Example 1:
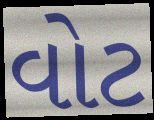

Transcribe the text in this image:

વોટ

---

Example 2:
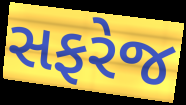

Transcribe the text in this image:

સફરેજ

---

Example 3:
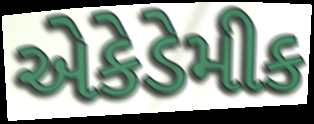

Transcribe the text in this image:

એકેડેમીક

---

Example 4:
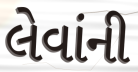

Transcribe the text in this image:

લેવાંની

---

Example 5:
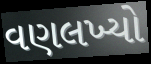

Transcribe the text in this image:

વણલખ્યો